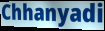
Chhanyadi